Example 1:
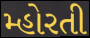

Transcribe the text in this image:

મ્હોરતી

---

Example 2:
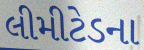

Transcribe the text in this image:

લીમીટેડના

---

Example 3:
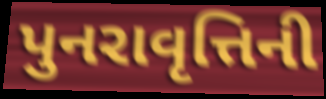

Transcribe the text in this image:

પુનરાવૃત્તિની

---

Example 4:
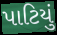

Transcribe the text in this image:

પાટિયું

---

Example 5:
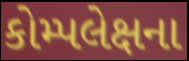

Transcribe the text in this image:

કોમ્પલેક્ષના